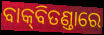
ବାକ୍‌ବିତଣ୍ଡାରେ